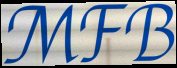
MFB